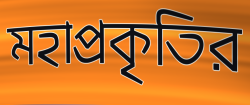
মহাপ্রকৃতির